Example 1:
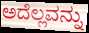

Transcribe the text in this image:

ಅದೆಲ್ಲವನ್ನು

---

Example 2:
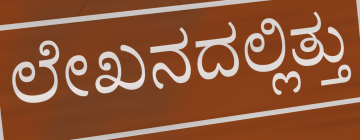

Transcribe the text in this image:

ಲೇಖನದಲ್ಲಿತ್ತು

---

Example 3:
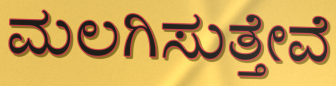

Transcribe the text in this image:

ಮಲಗಿಸುತ್ತೇವೆ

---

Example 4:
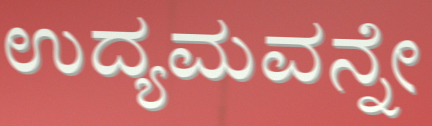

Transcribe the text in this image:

ಉದ್ಯಮವನ್ನೇ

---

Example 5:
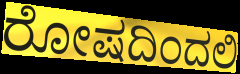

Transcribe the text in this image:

ರೋಷದಿಂದಲಿ